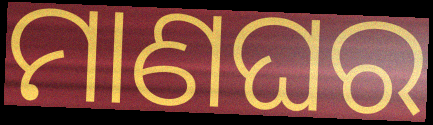
ମାଣଘର